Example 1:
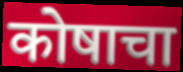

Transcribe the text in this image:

कोषाचा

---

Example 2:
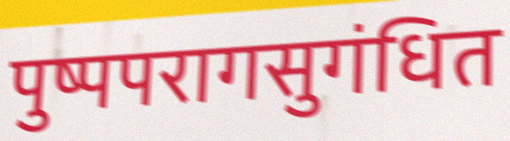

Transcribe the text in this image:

पुष्पपरागसुगंधित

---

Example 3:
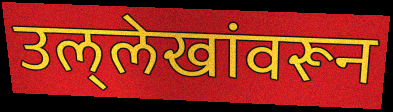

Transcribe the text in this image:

उल्लेखांवरून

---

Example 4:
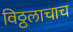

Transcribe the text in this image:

विठ्ठलाचाच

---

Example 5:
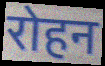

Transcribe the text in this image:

रोहन